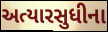
અત્યારસુધીના